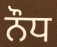
ਨੌਧ